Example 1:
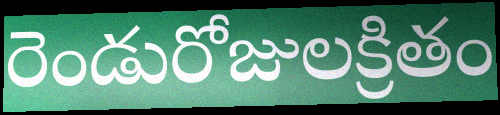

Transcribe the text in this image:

రెండురోజులక్రితం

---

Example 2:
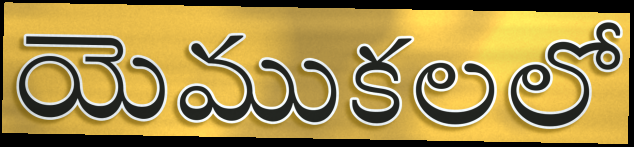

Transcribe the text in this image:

యెముకలలో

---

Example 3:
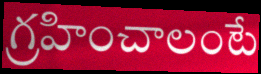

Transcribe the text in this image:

గ్రహించాలంటే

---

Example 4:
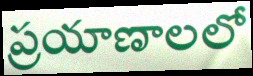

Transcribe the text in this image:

ప్రయాణాలలో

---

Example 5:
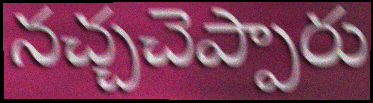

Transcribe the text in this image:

నచ్చచెప్పారు